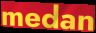
medan